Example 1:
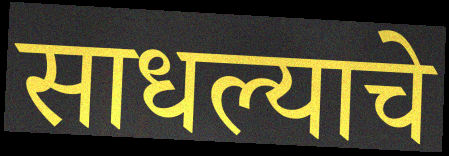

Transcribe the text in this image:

साधल्याचे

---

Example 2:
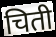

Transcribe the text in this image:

चिती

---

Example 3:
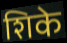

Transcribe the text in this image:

शिके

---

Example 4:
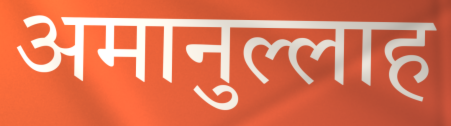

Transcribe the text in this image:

अमानुल्लाह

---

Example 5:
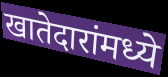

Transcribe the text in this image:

खातेदारांमध्ये